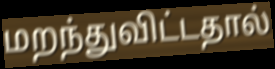
மறந்துவிட்டதால்